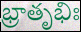
భ్రాతృభిః